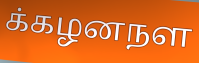
க்கழனநள